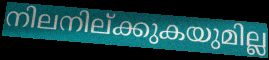
നിലനില്ക്കുകയുമില്ല